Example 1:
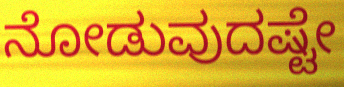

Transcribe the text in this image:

ನೋಡುವುದಷ್ಟೇ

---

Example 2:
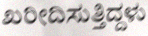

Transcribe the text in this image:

ಖರೀದಿಸುತ್ತಿದ್ದಳು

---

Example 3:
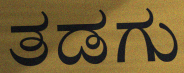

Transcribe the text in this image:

ತಡಗು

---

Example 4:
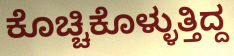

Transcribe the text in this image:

ಕೊಚ್ಚಿಕೊಳ್ಳುತ್ತಿದ್ದ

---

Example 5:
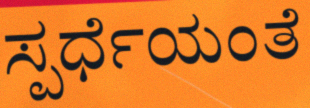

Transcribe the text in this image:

ಸ್ಪರ್ಧೆಯಂತೆ